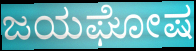
ಜಯಘೋಷ